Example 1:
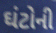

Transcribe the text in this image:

ઘંટોની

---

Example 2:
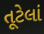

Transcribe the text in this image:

તૂટેલાં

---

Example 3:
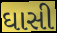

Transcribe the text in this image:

ઘાસી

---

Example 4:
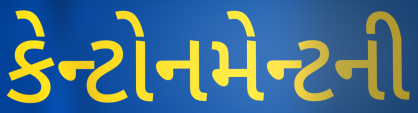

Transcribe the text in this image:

કેન્ટોનમેન્ટની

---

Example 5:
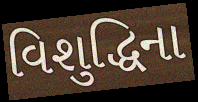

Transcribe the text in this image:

વિશુદ્ધિના